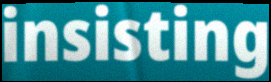
insisting